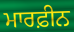
ਮਾਰਫ਼ੀਨ